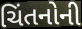
ચિંતનોની